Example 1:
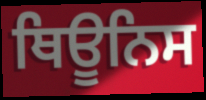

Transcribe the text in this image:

ਥਿਊਨਿਸ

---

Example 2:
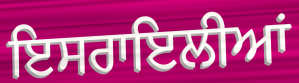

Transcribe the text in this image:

ਇਸਰਾਇਲੀਆਂ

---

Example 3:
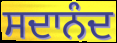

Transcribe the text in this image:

ਸਦਾਨੰਦ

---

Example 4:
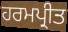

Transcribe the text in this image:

ਹਰਮਪ੍ਰੀਤ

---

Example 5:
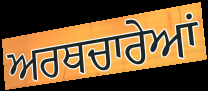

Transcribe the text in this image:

ਅਰਥਚਾਰੇਆਂ